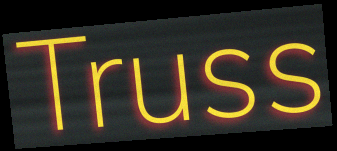
Truss